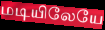
மடியிலேயே